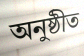
অনুষ্ঠীত